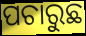
ପଚାରୁଛ